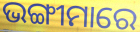
ଭଙ୍ଗୀମାରେ